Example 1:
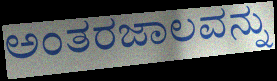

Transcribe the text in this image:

ಅಂತರಜಾಲವನ್ನು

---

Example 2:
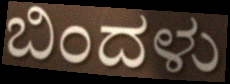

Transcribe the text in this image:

ಬಿಂದಳು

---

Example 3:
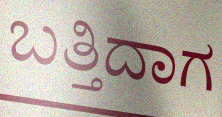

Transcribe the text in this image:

ಬತ್ತಿದಾಗ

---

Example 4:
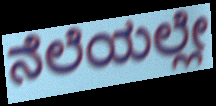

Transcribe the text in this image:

ನೆಲೆಯಲ್ಲೇ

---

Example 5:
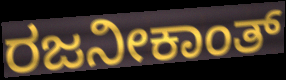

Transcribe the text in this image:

ರಜನೀಕಾಂತ್